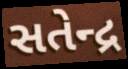
સતેન્દ્ર